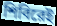
শিবিরেই